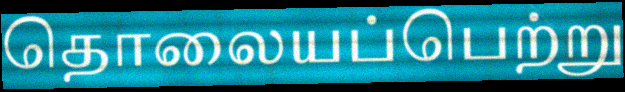
தொலையப்பெற்று